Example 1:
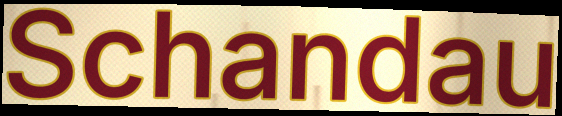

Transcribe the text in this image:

Schandau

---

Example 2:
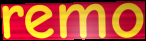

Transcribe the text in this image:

remo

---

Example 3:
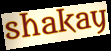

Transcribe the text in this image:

shakay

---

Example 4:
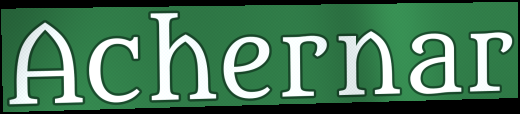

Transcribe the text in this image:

Achernar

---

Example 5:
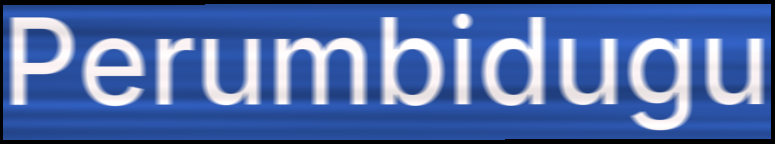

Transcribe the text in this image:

Perumbidugu